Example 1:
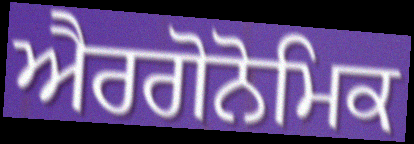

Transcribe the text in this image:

ਐਰਗੋਨੋਮਿਕ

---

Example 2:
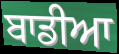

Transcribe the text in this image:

ਬਾਡੀਆ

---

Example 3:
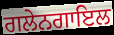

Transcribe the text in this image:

ਗਲੇਨਗਾਇਲ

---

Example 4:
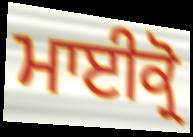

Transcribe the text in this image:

ਮਾਈਕ੍ਰੋ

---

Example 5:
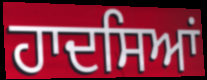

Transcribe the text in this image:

ਹਾਦਸਿਆਂ